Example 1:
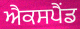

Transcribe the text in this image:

ਐਕਸਪੈਂਡ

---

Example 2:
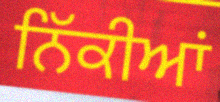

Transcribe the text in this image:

ਨਿੱਕੀਆਂ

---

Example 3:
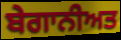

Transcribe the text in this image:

ਬੇਗਾਨੀਅਤ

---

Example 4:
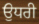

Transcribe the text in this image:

ਉਧਰੀ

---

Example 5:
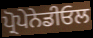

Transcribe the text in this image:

ਪ੍ਰੋਪੇਨੇਡੀਓਲ